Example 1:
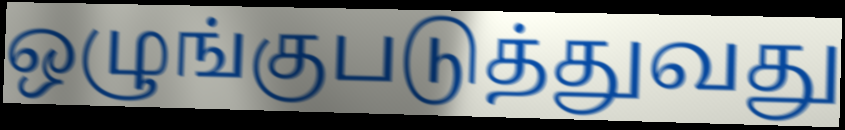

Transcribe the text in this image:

ஒழுங்குபடுத்துவது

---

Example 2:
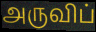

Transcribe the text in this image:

அருவிப்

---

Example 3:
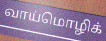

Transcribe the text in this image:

வாய்மொழிக்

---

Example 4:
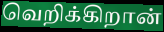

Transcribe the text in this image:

வெறிக்கிறான்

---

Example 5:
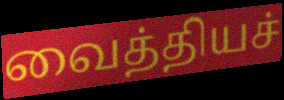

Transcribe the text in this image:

வைத்தியச்